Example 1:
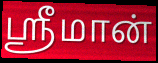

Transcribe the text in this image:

ஸ்ரீமான்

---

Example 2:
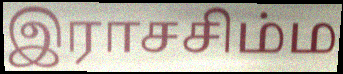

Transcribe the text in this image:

இராசசிம்ம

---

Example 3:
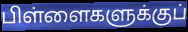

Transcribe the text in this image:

பிள்ளைகளுக்குப்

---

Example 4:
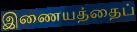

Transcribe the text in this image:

இணையத்தைப்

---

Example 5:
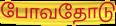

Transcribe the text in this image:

போவதோடு